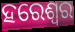
ହରେଶ୍ୱର